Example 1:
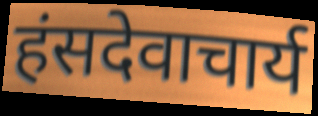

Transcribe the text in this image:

हंसदेवाचार्य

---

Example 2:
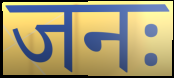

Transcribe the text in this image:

जनः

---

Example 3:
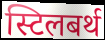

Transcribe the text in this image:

स्टिलबर्थ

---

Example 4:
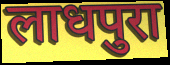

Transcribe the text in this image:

लाधपुरा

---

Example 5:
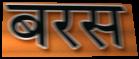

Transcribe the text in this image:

बरस